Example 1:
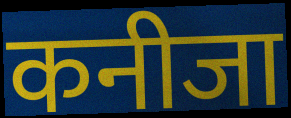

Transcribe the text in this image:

कनीजा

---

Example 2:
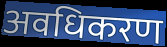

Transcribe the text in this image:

अवधिकरण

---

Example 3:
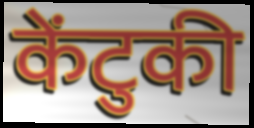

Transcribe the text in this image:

केंटुकी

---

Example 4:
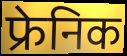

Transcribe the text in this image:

फ्रेनिक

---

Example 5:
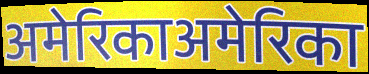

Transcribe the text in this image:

अमेरिकाअमेरिका